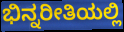
ಭಿನ್ನರೀತಿಯಲ್ಲಿ